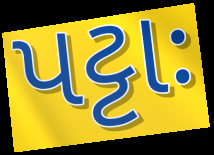
પટ્ટાઃ